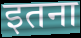
इतना